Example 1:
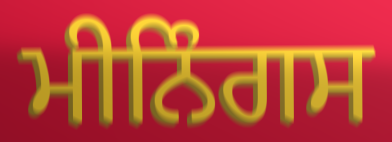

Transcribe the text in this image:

ਮੀਨਿੰਗਸ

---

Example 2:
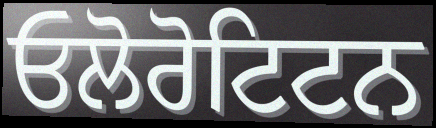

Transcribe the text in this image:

ਓਲੋਰੋਟਿਟਨ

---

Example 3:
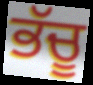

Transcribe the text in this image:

ਭੱਚੂ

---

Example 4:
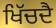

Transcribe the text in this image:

ਖਿੱਚਦੈ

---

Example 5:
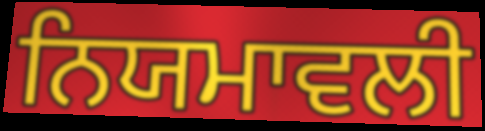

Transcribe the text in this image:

ਨਿਯਮਾਵਲੀ